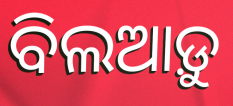
ବିଲଆଡ଼ୁ